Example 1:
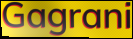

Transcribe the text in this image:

Gagrani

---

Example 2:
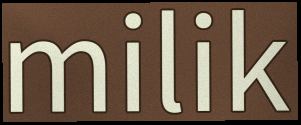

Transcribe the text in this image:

milik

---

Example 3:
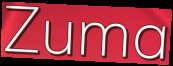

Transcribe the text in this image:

Zuma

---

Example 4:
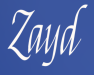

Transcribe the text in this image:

Zayd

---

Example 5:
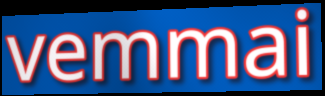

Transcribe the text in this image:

vemmai